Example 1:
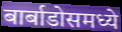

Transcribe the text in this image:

बार्बाडोसमध्ये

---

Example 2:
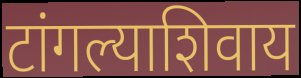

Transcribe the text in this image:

टांगल्याशिवाय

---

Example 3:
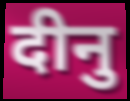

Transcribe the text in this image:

दीनु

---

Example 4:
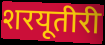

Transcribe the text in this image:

शरयूतीरी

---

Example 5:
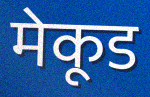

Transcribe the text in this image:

मेकूड